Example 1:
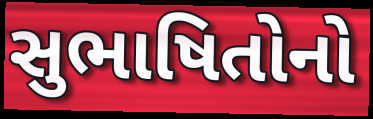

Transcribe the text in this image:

સુભાષિતોનો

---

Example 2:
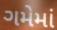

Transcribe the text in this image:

ગમેમાં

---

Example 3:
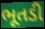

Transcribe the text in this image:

ભૂતડી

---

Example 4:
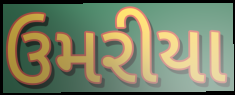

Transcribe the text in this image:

ઉમરીયા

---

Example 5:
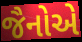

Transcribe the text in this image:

જૈનોએ